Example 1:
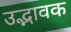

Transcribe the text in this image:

उद्भावक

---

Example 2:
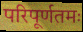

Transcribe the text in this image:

परिपूर्णतमः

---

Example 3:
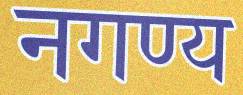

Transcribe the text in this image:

नगण्य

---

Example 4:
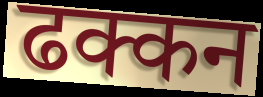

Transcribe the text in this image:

ढक्कन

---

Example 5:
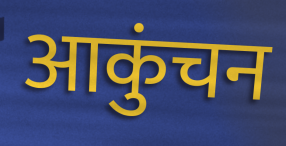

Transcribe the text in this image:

आकुंचन